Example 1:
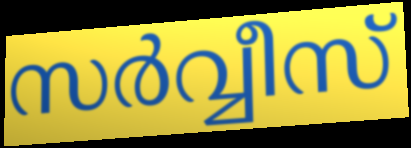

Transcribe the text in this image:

സർവ്വീസ്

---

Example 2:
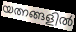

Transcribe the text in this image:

യത്നങ്ങളിൽ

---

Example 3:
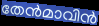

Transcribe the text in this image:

തേൻമാവിൻ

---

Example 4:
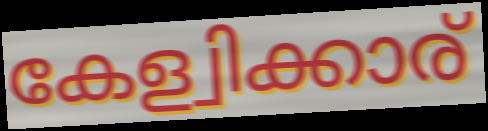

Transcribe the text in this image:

കേള്വിക്കാര്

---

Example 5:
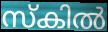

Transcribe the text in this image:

സ്കിൽ